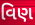
વિણ